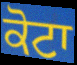
ਕੋਟਾ